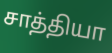
சாத்தியா